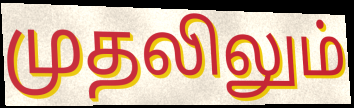
முதலிலும்